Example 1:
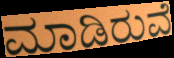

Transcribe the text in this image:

ಮಾಡಿರುವೆ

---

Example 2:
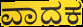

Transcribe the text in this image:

ವಾದಕ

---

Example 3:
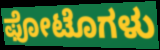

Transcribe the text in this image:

ಫೋಟೊಗಳು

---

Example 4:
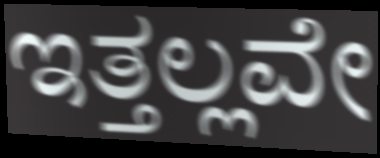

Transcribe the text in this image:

ಇತ್ತಲ್ಲವೇ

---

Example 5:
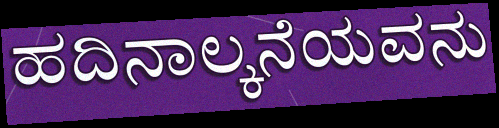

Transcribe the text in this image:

ಹದಿನಾಲ್ಕನೆಯವನು